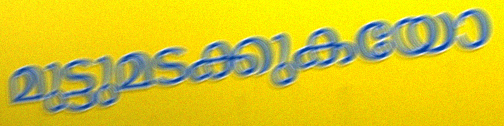
മുട്ടുമടക്കുകയോ